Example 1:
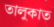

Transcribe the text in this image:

তালুকাত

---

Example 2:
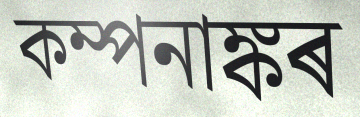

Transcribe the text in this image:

কম্পনাঙ্কৰ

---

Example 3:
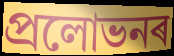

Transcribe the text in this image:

প্ৰলোভনৰ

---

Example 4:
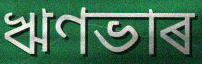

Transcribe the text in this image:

ঋণভাৰ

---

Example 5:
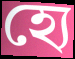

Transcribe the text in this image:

হ্যে